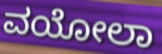
ವಯೋಲಾ